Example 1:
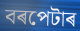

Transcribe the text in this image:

বৰপেটাৰ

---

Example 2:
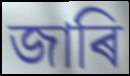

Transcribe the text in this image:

জাৰি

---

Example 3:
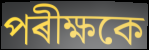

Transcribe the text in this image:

পৰীক্ষকে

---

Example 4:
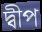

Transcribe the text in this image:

দ্বীপ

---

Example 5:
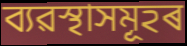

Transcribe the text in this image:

ব্যৱস্থাসমূহৰ